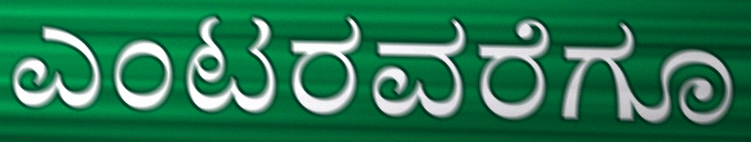
ಎಂಟರವರೆಗೂ